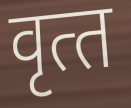
वृत्‍त